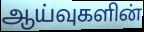
ஆய்வுகளின்